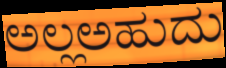
ಅಲ್ಲಅಹುದು